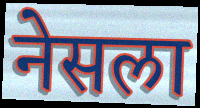
नेसला